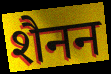
शैनन